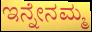
ಇನ್ನೇನಮ್ಮ